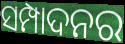
ସମ୍ପାଦନର